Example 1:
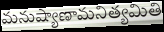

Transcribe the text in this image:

మనుష్యాణామనిత్యమితి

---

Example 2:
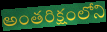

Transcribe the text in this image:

అంతరిక్షంలోని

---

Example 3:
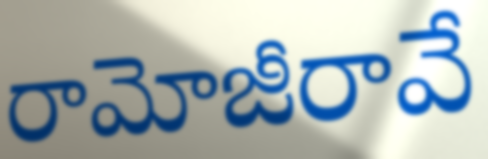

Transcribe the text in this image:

రామోజీరావే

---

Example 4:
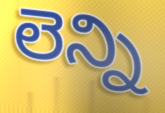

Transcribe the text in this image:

లెన్ని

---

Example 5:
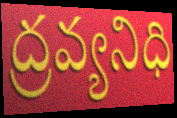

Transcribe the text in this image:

ద్రవ్యనిధి